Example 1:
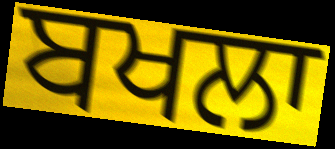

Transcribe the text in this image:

ਬਖਲਾ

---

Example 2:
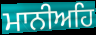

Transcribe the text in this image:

ਮਾਨੀਅਹਿ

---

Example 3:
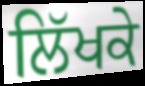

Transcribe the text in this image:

ਲਿੱਖਕੇ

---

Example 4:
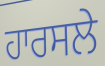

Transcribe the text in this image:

ਹਾਰਸਲੇ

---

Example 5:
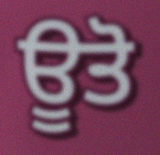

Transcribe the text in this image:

ਊਤੋ